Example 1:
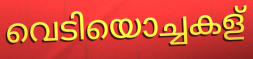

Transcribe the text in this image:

വെടിയൊച്ചകള്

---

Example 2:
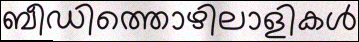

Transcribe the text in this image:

ബീഡിത്തൊഴിലാളികൾ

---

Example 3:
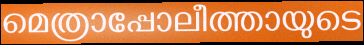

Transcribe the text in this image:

മെത്രാപ്പോലീത്തായുടെ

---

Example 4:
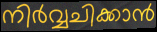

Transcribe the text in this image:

നിർവ്വചിക്കാൻ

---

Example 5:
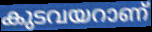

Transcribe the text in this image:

കുടവയറാണ്